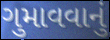
ગુમાવવાનું